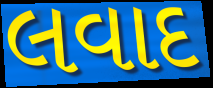
લવાદ